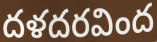
దళదరవింద